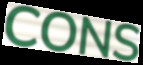
CONS